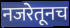
नजरेतूनच